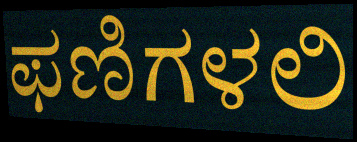
ಫಣಿಗಳಲಿ